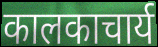
कालकाचार्य